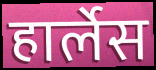
हार्लेस